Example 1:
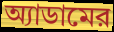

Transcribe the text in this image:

অ্যাডামের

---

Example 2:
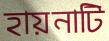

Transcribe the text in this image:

হায়নাটি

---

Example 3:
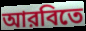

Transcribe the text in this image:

আরবিতে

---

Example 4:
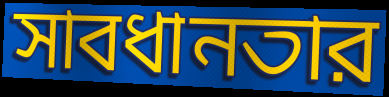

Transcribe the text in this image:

সাবধানতার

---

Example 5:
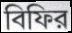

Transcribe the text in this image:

বিফির